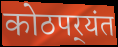
कोठपर्यंत